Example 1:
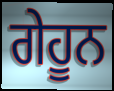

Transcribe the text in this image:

ਗੇਹੂਨ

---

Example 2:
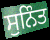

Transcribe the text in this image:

ਸੁਨਿੰਤ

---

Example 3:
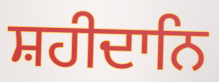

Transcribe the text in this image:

ਸ਼ਹੀਦਾਨਿ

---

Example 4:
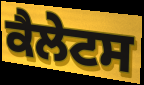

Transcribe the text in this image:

ਕੈਲੇਟਸ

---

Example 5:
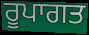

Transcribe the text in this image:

ਰੂਪਾਗਤ